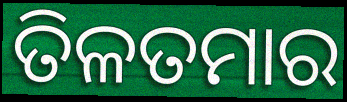
ତିଳତମାର